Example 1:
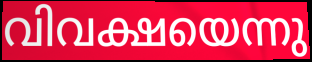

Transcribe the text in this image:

വിവക്ഷയെന്നു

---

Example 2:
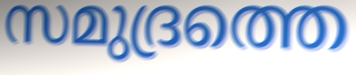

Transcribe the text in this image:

സമുദ്രത്തെ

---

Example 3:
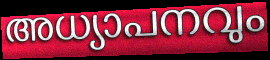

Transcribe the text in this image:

അധ്യാപനവും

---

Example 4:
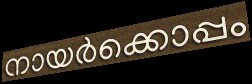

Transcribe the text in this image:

നായർക്കൊപ്പം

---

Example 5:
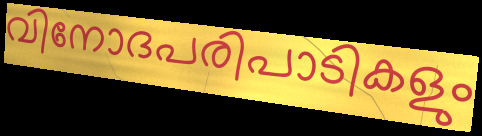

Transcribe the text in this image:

വിനോദപരിപാടികളും